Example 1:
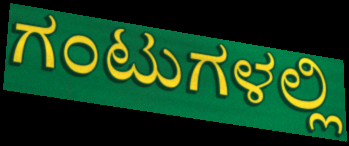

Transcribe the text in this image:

ಗಂಟುಗಳಲ್ಲಿ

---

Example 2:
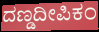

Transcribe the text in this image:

ದಣ್ಡದೀಪಿಕಂ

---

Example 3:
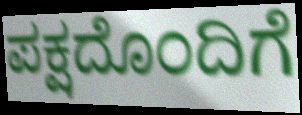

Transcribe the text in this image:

ಪಕ್ಷದೊಂದಿಗೆ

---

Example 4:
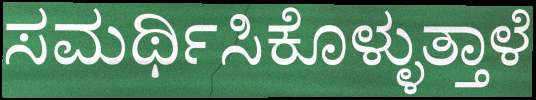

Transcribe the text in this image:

ಸಮರ್ಥಿಸಿಕೊಳ್ಳುತ್ತಾಳೆ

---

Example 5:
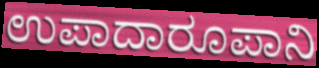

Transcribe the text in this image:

ಉಪಾದಾರೂಪಾನಿ